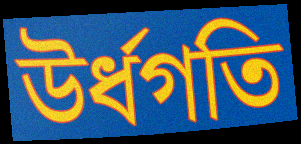
উর্ধগতি